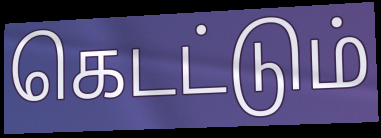
கெடட்டும்